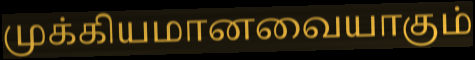
முக்கியமானவையாகும்